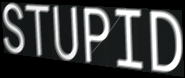
STUPID